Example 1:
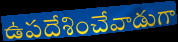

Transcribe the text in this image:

ఉపదేశించేవాడుగా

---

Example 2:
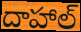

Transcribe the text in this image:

దాహాల్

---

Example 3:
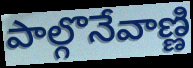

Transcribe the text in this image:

పాల్గొనేవాణ్ణి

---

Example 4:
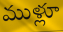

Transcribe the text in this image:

ముళ్లూ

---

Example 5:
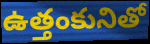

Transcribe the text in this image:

ఉత్తంకునితో